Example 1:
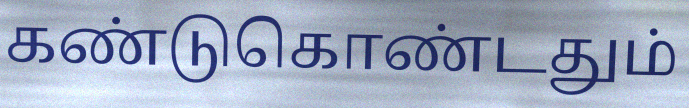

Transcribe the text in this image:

கண்டுகொண்டதும்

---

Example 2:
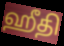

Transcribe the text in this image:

ஹீதி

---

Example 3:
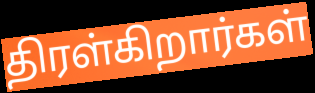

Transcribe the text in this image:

திரள்கிறார்கள்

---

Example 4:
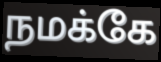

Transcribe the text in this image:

நமக்கே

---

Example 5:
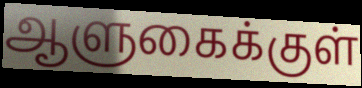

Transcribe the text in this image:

ஆளுகைக்குள்